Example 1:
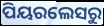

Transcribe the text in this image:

ପିୟରଲେସରୁ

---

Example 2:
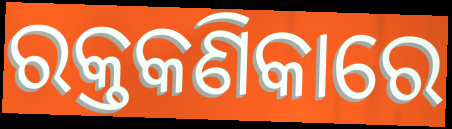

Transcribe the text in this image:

ରକ୍ତକଣିକାରେ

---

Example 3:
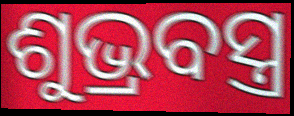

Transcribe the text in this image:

ଶୁଭ୍ରବସ୍ତ୍ର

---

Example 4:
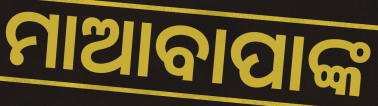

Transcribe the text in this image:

ମାଆବାପାଙ୍କ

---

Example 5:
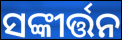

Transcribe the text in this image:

ସଙ୍କୀର୍ତ୍ତନ